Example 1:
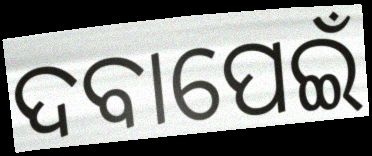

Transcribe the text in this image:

ଦବାପେଇଁ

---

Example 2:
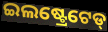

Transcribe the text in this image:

ଇଲଷ୍ଟ୍ରେଟେଡ୍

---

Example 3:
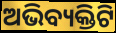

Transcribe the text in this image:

ଅଭିବ୍ୟକ୍ତିଟି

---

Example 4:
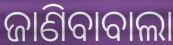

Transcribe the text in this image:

ଜାଣିବାବାଲା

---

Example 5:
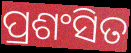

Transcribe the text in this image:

ପ୍ରଶଂସିତ